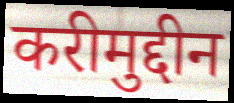
करीमुद्दीन